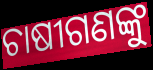
ଚାଷୀଗଣଙ୍କୁ